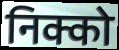
निक्को